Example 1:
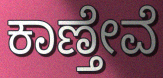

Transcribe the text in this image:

ಕಾಣ್ತೇವೆ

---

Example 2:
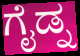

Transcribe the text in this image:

ಗೈಡ್ನ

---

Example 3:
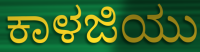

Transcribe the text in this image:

ಕಾಳಜಿಯು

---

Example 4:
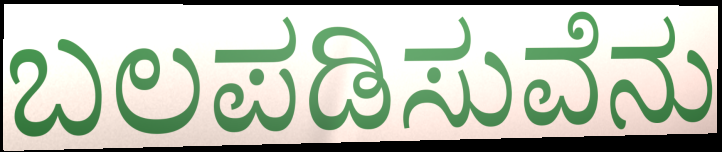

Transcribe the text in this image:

ಬಲಪಡಿಸುವೆನು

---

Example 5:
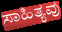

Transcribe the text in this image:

ಸಾಹಿತ್ಯವು